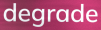
degrade